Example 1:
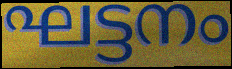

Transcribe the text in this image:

ഘട്ടനം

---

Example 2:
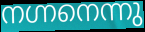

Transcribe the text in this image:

നഗ്നനെന്നു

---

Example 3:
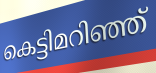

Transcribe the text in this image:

കെട്ടിമറിഞ്ഞ്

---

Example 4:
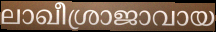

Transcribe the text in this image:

ലാഖീശ്രാജാവായ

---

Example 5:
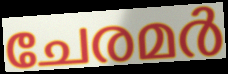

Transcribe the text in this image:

ചേരമർ